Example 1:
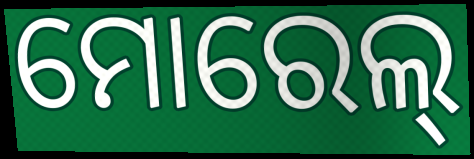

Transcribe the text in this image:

ମୋରେଲ୍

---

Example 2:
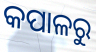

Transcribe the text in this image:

କପାଳରୁ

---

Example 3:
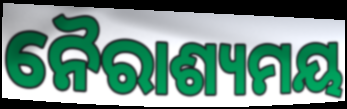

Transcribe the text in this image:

ନୈରାଶ୍ୟମୟ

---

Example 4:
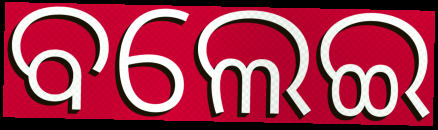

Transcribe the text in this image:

ବଲେଇ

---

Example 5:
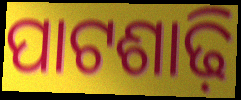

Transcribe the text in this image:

ପାଟଶାଢ଼ି